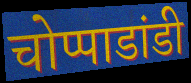
चोप्पाडांडी